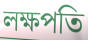
লক্ষপতি